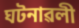
ঘটনাৱলী